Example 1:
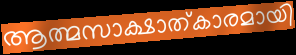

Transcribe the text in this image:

ആത്മസാക്ഷാത്കാരമായി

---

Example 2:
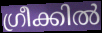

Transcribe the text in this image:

ഗ്രീക്കിൽ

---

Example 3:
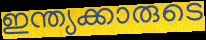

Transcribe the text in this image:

ഇന്ത്യക്കാരുടെ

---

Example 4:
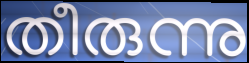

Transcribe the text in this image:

തീരുന്നു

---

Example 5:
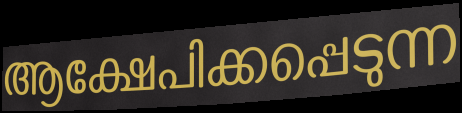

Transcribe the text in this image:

ആക്ഷേപിക്കപ്പെടുന്ന